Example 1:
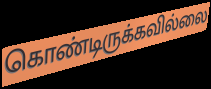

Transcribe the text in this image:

கொண்டிருக்கவில்லை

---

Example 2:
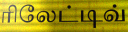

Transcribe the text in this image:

ரிலேட்டிவ்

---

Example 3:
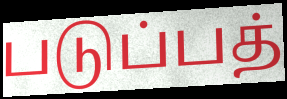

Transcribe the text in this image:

படுப்பத்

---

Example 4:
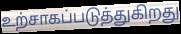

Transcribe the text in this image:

உற்சாகப்படுத்துகிறது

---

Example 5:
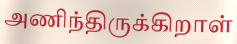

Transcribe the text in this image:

அணிந்திருக்கிறாள்